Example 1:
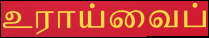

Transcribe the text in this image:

உராய்வைப்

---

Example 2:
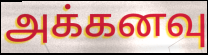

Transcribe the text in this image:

அக்கனவு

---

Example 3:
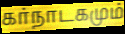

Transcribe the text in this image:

கர்நாடகமும்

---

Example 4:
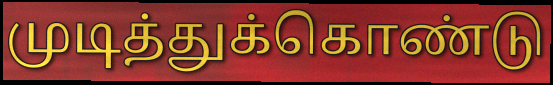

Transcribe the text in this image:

முடித்துக்கொண்டு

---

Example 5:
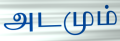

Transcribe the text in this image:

அடமும்